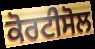
ਕੋਰਟੀਸੋਲ